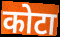
कोटा